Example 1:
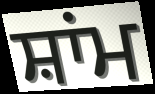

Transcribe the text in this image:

ਸ਼ਾਂਮ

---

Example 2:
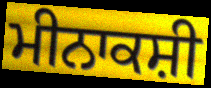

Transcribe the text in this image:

ਮੀਨਾਕਸ਼ੀ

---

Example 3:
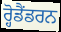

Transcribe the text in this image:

ਰ੍ਹੋਡੈਂਡਰਨ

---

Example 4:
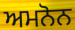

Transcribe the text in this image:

ਅਮਨੋਨ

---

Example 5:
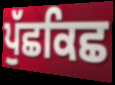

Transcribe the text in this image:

ਪੁੱਛਕਿਛ